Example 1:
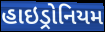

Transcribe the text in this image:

હાઇડ્રોનિયમ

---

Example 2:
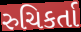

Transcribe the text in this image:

રુચિકર્તા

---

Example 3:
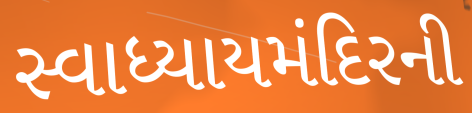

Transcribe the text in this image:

સ્વાધ્યાયમંદિરની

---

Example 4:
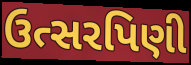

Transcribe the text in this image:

ઉત્સરપિણી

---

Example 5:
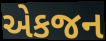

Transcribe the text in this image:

એકજન